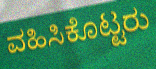
ವಹಿಸಿಕೊಟ್ಟರು